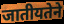
जातीयतेने